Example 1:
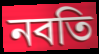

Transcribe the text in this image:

নবতি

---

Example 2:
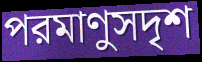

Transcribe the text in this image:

পরমাণুসদৃশ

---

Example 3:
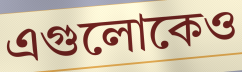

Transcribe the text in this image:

এগুলোকেও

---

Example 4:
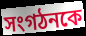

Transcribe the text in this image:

সংগঠনকে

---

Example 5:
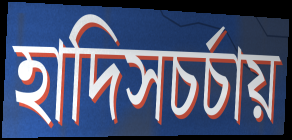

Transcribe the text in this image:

হাদিসচর্চায়